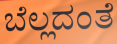
ಬೆಲ್ಲದಂತೆ